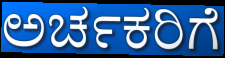
ಅರ್ಚಕರಿಗೆ